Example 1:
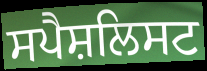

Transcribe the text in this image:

ਸਪੈਸ਼ਲਿਸਟ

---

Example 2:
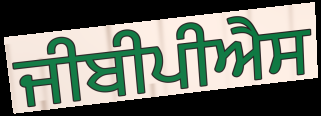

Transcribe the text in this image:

ਜੀਬੀਪੀਐਸ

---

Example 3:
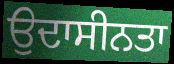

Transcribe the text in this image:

ਉਦਾਸੀਨਤਾ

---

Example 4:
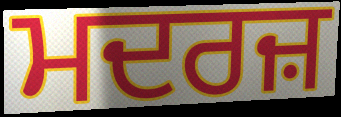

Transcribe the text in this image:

ਮਦਰਜ਼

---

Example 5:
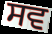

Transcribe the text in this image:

ਸਵ